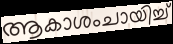
ആകാശംചായിച്ച്